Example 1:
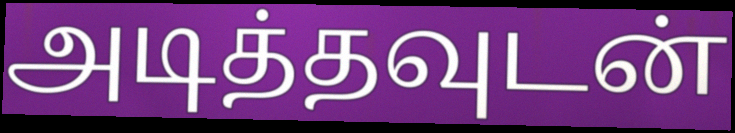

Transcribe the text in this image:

அடித்தவுடன்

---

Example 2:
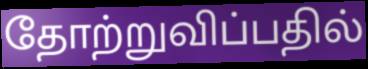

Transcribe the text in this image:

தோற்றுவிப்பதில்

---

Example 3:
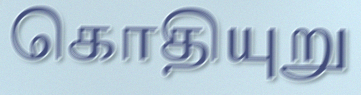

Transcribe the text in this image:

கொதியுறு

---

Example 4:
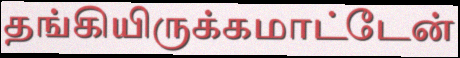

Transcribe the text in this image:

தங்கியிருக்கமாட்டேன்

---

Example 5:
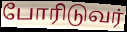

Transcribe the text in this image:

போரிடுவர்